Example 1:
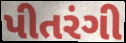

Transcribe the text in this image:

પીતરંગી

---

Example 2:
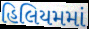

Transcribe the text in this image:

હિલિયમમાં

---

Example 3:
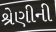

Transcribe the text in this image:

શ્રેણીની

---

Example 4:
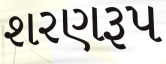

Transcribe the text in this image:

શરણરૂપ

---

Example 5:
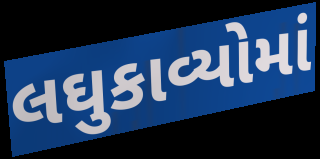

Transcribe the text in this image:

લઘુકાવ્યોમાં